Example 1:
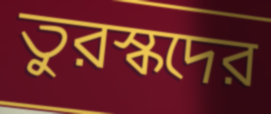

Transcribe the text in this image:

তুরস্কদের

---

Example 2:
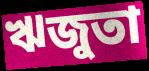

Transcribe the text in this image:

ঋজুতা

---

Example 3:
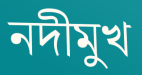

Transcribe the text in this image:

নদীমুখ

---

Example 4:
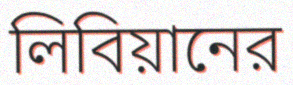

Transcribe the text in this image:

লিবিয়ানের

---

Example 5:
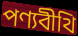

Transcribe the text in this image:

পণ্যবীথি